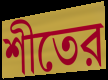
শীতের